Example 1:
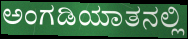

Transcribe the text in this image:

ಅಂಗಡಿಯಾತನಲ್ಲಿ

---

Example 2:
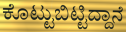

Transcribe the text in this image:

ಕೊಟ್ಟುಬಿಟ್ಟಿದ್ದಾನೆ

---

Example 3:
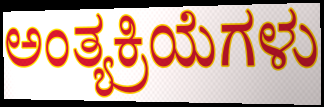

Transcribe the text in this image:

ಅಂತ್ಯಕ್ರಿಯೆಗಳು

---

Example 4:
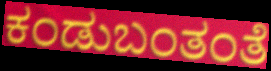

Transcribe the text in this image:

ಕಂಡುಬಂತಂತೆ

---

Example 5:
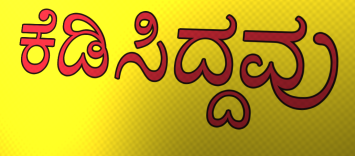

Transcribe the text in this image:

ಕೆಡಿಸಿದ್ದವು